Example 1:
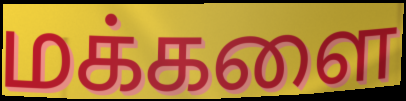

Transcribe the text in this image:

மக்களை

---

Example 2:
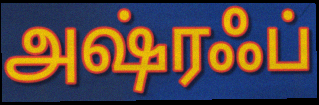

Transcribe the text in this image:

அஷ்ரஃப்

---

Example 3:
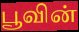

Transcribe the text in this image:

பூவின்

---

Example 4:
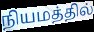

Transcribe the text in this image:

நியமத்தில்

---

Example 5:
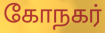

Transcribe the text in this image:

கோநகர்